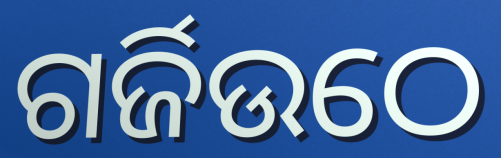
ଗର୍ଜିଉଠେ